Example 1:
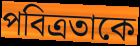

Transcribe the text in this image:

পবিত্রতাকে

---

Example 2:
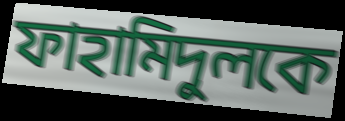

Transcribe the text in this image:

ফাহামিদুলকে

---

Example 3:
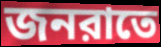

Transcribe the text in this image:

জনরাতে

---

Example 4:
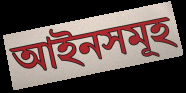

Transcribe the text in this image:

আইনসমূহ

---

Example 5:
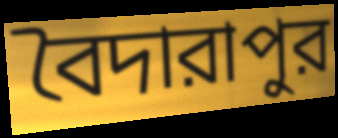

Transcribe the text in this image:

বৈদারাপুর